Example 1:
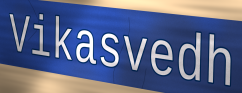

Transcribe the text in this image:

Vikasvedh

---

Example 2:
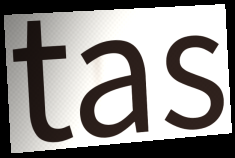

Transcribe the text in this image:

tas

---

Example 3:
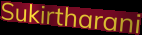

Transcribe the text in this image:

Sukirtharani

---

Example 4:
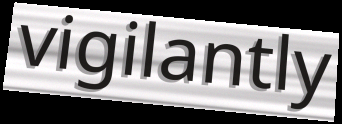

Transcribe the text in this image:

vigilantly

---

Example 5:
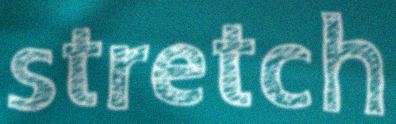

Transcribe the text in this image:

stretch